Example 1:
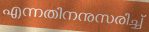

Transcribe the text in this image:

എന്നതിനനുസരിച്ച്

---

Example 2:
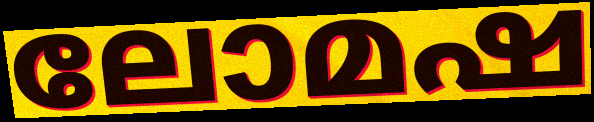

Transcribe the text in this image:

ലോമഷ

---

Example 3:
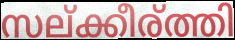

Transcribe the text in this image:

സല്ക്കീര്ത്തി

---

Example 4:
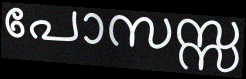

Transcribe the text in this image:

പോസസ്സ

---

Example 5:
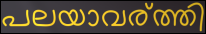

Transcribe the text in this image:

പലയാവര്ത്തി